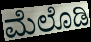
ಮೆಲೊಡಿ